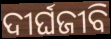
ଦୀର୍ଘଜୀବି